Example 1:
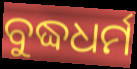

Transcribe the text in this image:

ବୁଦ୍ଧଧର୍ମ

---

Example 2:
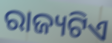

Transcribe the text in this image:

ରାଜ୍ୟଟିଏ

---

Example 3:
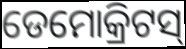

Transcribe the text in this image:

ଡେମୋକ୍ରିଟସ୍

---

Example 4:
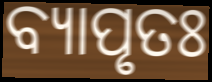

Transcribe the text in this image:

ବ୍ୟାପୃତଃ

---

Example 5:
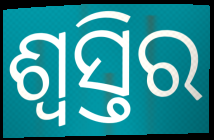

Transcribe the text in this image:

ଶ୍ୱସ୍ତିର